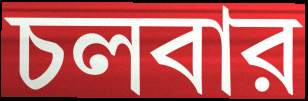
চলবার